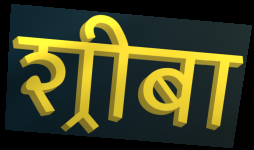
श्रीबा